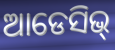
ଆଡେସିଭ୍